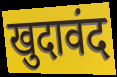
खुदावंद